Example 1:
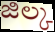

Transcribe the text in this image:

జిల్క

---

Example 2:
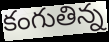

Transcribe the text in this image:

కంగుతిన్న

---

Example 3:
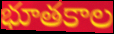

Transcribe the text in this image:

భూతకాల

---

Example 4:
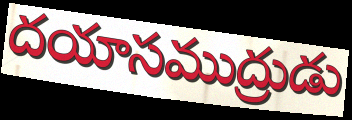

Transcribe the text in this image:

దయాసముద్రుడు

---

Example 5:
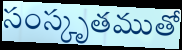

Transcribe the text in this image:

సంస్కృతముతో